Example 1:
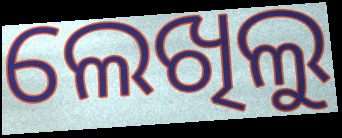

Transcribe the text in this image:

ଲେଖିଲୁ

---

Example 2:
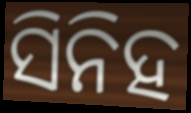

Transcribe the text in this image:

ସିନିହ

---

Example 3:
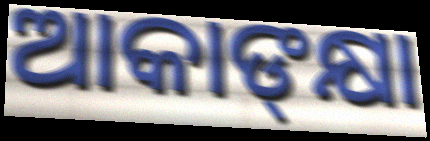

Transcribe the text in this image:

ଆକାଙ୍‍କ୍ଷା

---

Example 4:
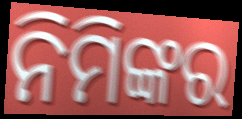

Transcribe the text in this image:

ନିମିଙ୍କର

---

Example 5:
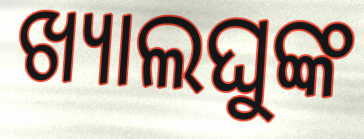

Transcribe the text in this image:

ଖ୍ୟାଲଘୁଙ୍କ